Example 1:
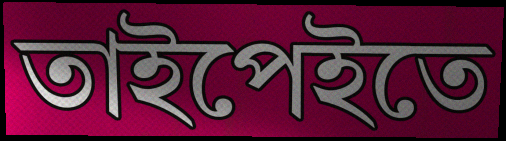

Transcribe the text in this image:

তাইপেইতে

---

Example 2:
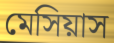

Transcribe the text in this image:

মেসিয়াস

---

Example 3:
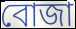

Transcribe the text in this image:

বোজা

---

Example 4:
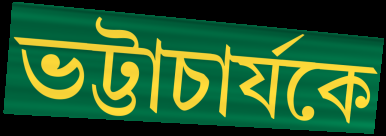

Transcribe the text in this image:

ভট্টাচার্যকে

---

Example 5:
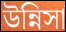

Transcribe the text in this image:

উন্নিসা